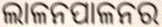
ଲାଳନପାଳନର